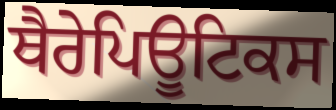
ਥੈਰੇਪਿਊਟਿਕਸ